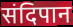
संदिपान